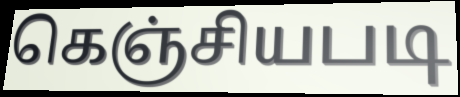
கெஞ்சியபடி